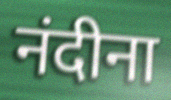
नंदीना